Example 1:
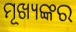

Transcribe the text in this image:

ମୂଖ୍ୟଙ୍କର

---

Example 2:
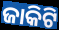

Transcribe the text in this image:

ଜାକିଟି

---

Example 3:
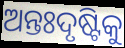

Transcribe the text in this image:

ଅନ୍ତଃଦୃଷ୍ଟିକୁ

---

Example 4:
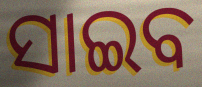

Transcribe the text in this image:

ସାଇବ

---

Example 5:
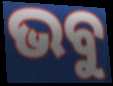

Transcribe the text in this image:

ଭବୁ